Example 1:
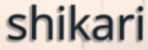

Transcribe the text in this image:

shikari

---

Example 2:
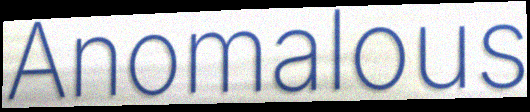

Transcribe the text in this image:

Anomalous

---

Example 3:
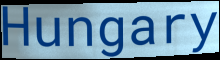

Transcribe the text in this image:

Hungary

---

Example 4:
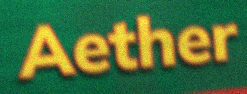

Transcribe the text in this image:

Aether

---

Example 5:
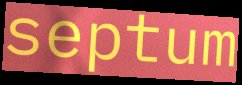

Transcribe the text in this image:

septum